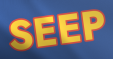
SEEP